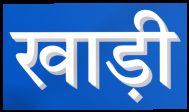
खाड़ी